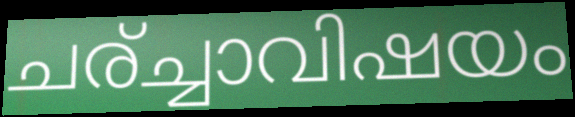
ചര്ച്ചാവിഷയം